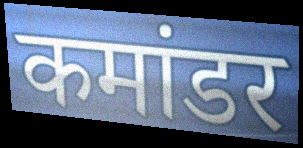
कमांडर